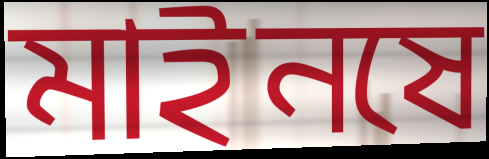
মাইনষে